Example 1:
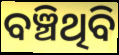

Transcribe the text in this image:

ବଞ୍ଚିଥିବି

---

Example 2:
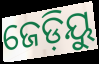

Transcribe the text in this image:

ଜେଡ଼ିୟୁ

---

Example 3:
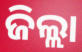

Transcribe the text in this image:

ଜିଲ୍ଲା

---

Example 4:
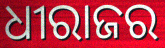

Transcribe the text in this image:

ଧୀରାଜର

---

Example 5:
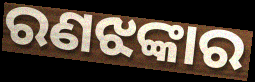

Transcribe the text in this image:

ରଣଝଙ୍କାର